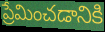
ప్రేమించడానికి